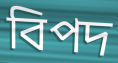
বিপদ